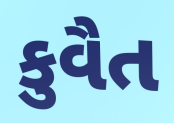
કુવૈત